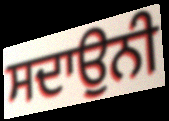
ਸਦਾਉਨੀ